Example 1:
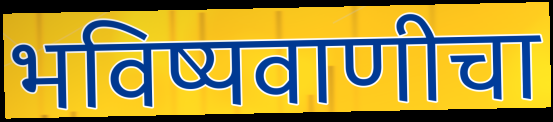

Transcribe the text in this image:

भविष्यवाणीचा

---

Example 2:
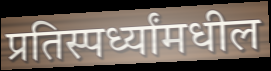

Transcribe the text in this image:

प्रतिस्पर्ध्यांमधील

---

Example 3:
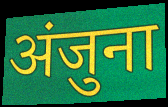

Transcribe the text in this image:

अंजुना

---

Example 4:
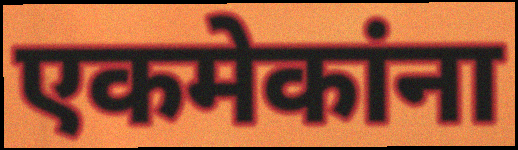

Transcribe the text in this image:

एकमेकांना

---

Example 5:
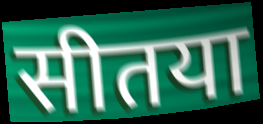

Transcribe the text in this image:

सीतया